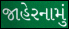
જાહેરનામું